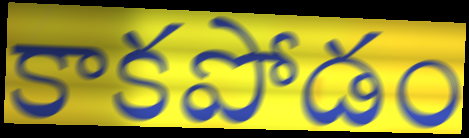
కాకపోడం